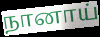
நானாய்